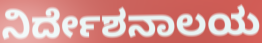
ನಿರ್ದೇಶನಾಲಯ